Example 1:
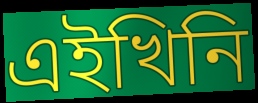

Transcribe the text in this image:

এইখিনি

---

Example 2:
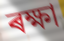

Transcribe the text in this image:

ৰক্ষা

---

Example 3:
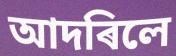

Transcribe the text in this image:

আদৰিলে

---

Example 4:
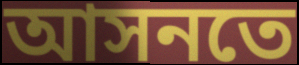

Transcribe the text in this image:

আসনতে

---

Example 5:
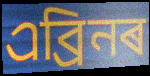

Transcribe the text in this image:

এব্ৰিনৰ